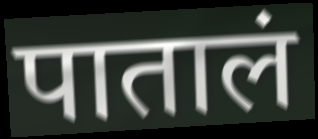
पातालं